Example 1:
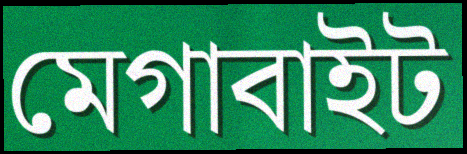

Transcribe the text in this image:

মেগাবাইট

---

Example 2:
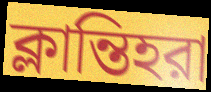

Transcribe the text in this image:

ক্লান্তিহরা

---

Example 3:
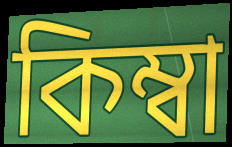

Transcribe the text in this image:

কিম্বা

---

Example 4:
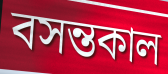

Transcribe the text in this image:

বসন্তকাল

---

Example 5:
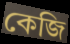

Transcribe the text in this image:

কেজি